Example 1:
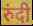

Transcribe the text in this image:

रुंदी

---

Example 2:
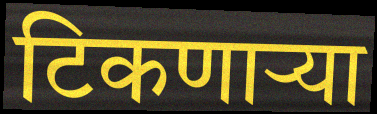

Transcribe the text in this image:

टिकणाऱ्या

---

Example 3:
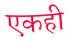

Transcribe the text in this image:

एकही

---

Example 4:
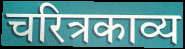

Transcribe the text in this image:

चरित्रकाव्य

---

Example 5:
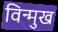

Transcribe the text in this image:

विन्मुख